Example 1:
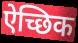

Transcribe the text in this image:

ऐच्छिक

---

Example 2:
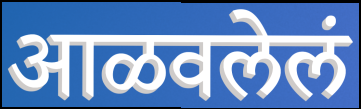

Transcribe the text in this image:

आळवलेलं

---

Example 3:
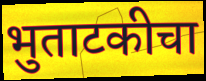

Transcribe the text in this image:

भुताटकीचा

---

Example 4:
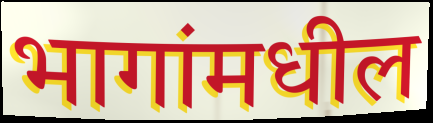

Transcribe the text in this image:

भागांमधील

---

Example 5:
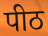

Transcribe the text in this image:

पीठ